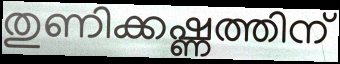
തുണിക്കഷ്ണത്തിന്